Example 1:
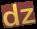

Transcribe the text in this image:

dz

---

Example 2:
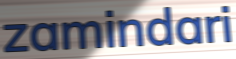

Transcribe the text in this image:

zamindari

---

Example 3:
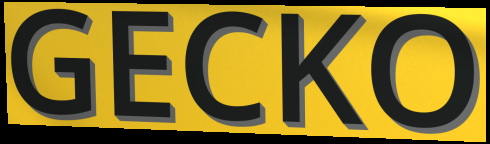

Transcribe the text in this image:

GECKO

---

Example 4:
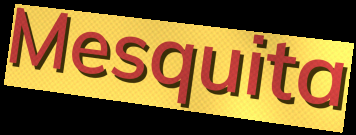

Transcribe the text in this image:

Mesquita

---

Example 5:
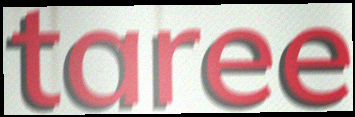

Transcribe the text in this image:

taree